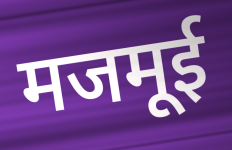
मजमूई